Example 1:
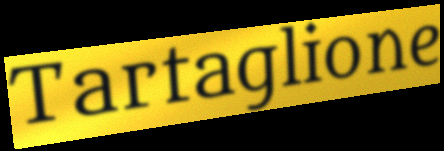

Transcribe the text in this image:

Tartaglione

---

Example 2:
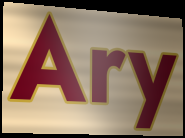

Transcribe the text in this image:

Ary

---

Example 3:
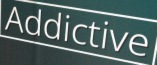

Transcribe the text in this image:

Addictive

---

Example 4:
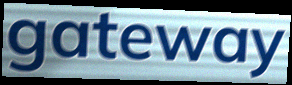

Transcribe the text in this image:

gateway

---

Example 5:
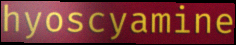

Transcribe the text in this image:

hyoscyamine